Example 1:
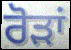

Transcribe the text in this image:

ਰੋੜਾਂ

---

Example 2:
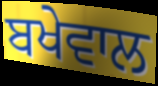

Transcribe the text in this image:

ਬਖੇਵਾਲ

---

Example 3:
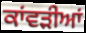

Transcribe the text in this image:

ਕਾਂਵੜੀਆਂ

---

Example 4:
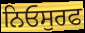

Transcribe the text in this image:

ਨਿਓਸੁਰਫ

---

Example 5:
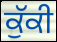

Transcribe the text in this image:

ਕੁੱਕੀ